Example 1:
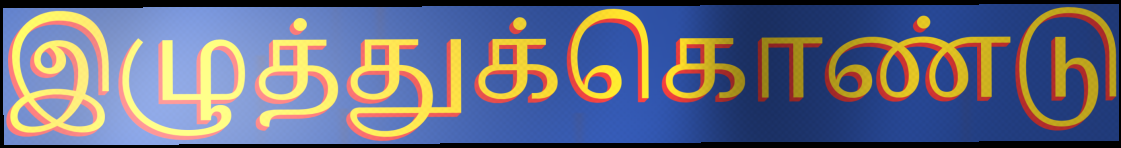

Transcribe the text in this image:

இழுத்துக்கொண்டு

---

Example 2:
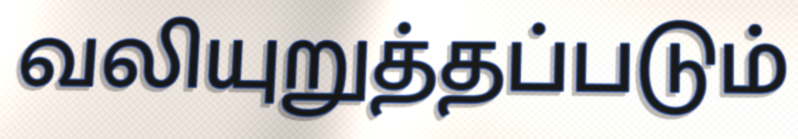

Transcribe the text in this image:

வலியுறுத்தப்படும்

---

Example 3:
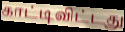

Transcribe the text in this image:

காட்டிவிட்டது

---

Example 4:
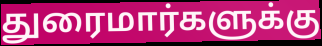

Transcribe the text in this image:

துரைமார்களுக்கு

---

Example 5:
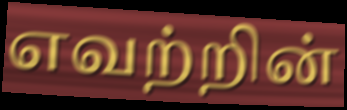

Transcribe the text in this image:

எவற்றின்